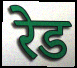
रेड